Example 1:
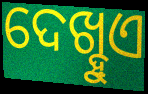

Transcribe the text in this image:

ଦେଖ୍ହୁଏ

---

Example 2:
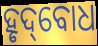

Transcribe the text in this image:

ହୃଦ୍‌ବୋଧ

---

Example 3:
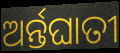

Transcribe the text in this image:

ଅର୍ନ୍ତଘାତୀ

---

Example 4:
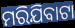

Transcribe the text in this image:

ମରିଯିବାଟା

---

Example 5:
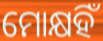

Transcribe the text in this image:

ମୋକ୍ଷହିଁ